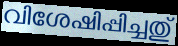
വിശേഷിപ്പിച്ചതു്